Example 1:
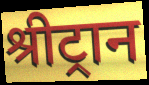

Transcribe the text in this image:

श्रीट्रान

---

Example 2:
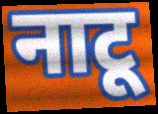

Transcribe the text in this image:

नाटू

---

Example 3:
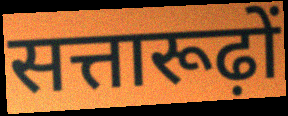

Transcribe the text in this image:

सत्तारूढ़ों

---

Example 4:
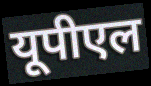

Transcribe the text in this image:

यूपीएल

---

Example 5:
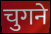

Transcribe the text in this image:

चुगने